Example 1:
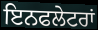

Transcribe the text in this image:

ਇਨਫਲੇਟਰਾਂ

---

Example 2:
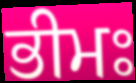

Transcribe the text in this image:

ਭੀਮਃ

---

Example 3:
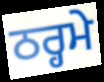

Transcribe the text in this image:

ਠਰ੍ਹਮੇ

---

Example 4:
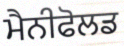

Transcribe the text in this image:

ਮੈਨੀਫੋਲਡ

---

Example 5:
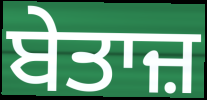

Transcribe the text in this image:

ਬੇਤਾਜ਼